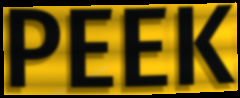
PEEK